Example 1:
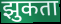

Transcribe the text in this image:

झुकता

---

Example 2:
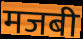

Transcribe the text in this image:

मजबी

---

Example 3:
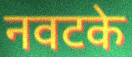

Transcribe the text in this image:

नवटके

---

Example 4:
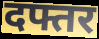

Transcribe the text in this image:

दफ्तर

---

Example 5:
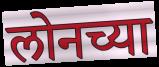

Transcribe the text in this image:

लोनच्या